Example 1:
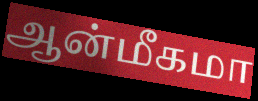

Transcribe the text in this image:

ஆன்மீகமா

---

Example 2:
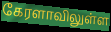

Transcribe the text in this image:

கேரளாவிலுள்ள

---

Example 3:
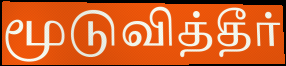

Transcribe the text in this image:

மூடுவித்தீர்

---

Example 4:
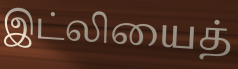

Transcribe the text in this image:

இட்லியைத்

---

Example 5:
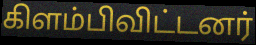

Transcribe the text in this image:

கிளம்பிவிட்டனர்